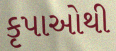
કૃપાઓથી